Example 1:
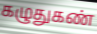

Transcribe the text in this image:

கழுதுகண்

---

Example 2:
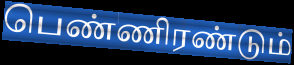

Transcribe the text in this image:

பெண்ணிரண்டும்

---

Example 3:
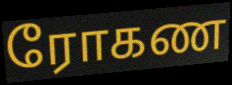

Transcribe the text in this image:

ரோகண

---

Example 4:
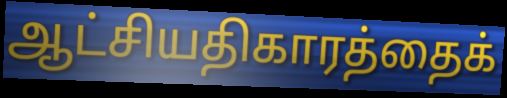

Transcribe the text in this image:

ஆட்சியதிகாரத்தைக்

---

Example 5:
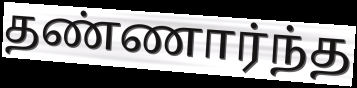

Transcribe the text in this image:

தண்ணார்ந்த